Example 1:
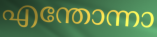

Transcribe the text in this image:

എന്തോന്നാ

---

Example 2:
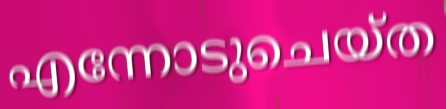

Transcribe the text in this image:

എന്നോടുചെയ്ത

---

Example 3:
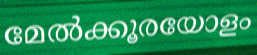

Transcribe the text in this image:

മേൽക്കൂരയോളം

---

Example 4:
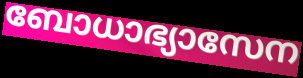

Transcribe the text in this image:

ബോധാഭ്യാസേന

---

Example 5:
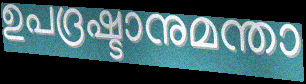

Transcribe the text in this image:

ഉപദ്രഷ്ടാനുമന്താ